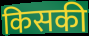
किसकी